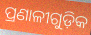
ପ୍ରଣାଳୀଗୁଡ଼ିକ